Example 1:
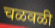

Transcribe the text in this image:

चळवळी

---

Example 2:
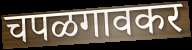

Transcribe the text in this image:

चपळगावकर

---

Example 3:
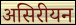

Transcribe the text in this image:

असिरीयन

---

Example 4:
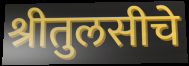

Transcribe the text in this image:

श्रीतुलसीचे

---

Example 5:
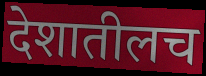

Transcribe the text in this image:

देशातीलच